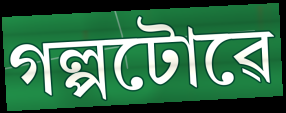
গল্পটোৱে